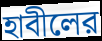
হাবীলের